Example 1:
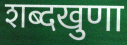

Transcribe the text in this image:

शब्दखुणा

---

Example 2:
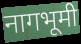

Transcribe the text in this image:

नागभूमी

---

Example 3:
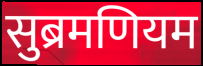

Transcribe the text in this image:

सुब्रमणियम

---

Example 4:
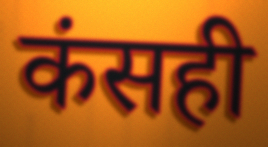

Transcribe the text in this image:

कंसही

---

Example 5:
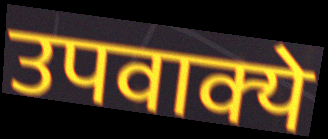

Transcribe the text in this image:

उपवाक्ये